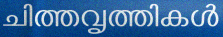
ചിത്തവൃത്തികൾ